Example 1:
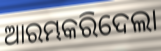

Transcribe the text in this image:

ଆରମ୍ଭକରିଦେଲା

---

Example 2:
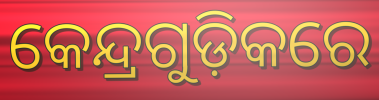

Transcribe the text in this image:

କେନ୍ଦ୍ରଗୁଡ଼ିକରେ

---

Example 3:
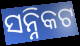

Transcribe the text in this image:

ସନ୍ନିକଟ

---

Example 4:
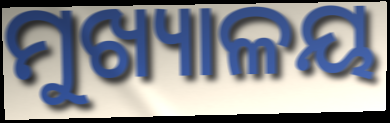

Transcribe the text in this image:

ମୁଖ୍ୟାଳୟ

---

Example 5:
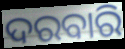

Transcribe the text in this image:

ଦରବାରି